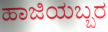
ಹಾಜಿಯಬ್ಬರ